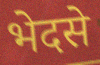
भेदसे